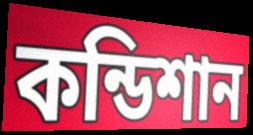
কন্ডিশান